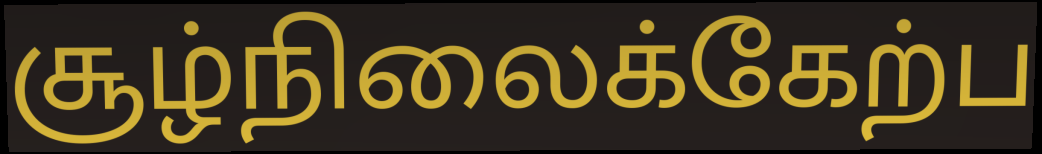
சூழ்நிலைக்கேற்ப